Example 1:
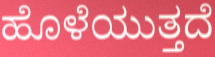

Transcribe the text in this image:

ಹೊಳೆಯುತ್ತದೆ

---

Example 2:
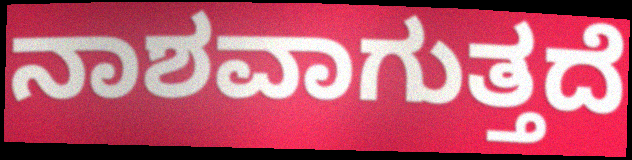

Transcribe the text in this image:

ನಾಶವಾಗುತ್ತದೆ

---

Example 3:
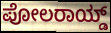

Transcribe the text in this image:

ಪೋಲರಾಯ್ಡ್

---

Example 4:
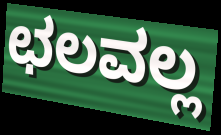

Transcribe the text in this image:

ಛಲವಲ್ಲ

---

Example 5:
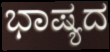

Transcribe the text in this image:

ಭಾಷ್ಯದ